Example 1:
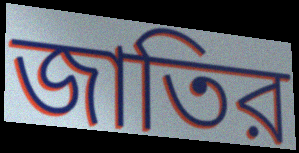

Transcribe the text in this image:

জাতির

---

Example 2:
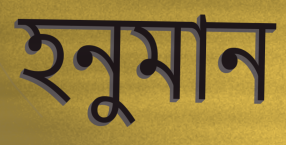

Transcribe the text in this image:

হনুমান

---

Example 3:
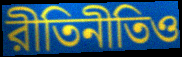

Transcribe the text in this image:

রীতিনীতিও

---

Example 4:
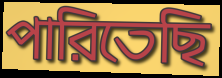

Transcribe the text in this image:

পারিতেছি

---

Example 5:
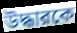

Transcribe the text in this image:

উদ্ধারকে